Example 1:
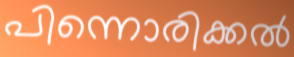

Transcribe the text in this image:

പിന്നൊരിക്കൽ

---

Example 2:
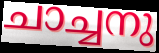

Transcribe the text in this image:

ചാച്ചനു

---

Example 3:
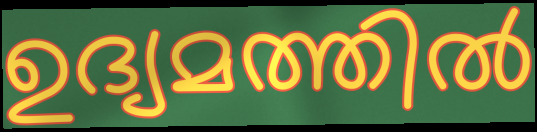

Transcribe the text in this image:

ഉദ്യമത്തിൽ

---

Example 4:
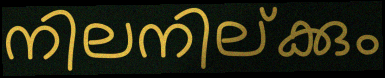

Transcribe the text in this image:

നിലനില്ക്കും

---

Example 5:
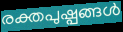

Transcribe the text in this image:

രക്തപുഷ്പങ്ങൾ